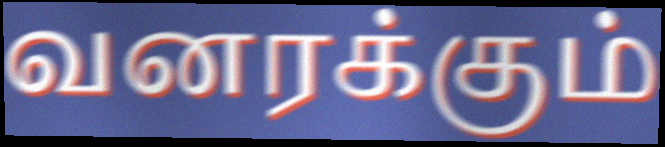
வனரக்கும்